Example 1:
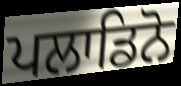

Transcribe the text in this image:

ਪਲਾਡਿਨੋ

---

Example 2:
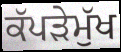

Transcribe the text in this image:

ਕੱਪੜੇਮੁੱਖ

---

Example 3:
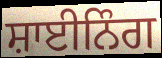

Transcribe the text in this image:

ਸ਼ਾਈਨਿੰਗ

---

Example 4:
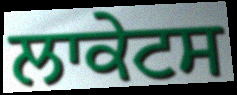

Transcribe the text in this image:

ਲਾਕੇਟਸ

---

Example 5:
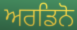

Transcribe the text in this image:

ਅਰਡਿਨੋ